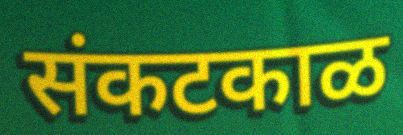
संकटकाळ